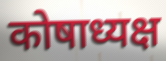
कोषाध्यक्ष